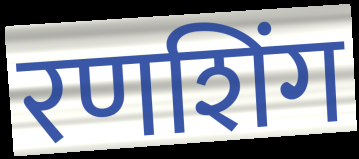
रणशिंग